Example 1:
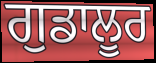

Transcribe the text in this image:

ਗੁਡਾਲੂਰ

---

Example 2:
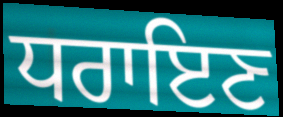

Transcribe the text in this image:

ਧਰਾਇਣ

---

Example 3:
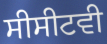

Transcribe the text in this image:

ਸੀਸੀਟਵੀ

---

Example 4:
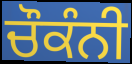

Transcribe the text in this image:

ਚੌਕੰਨੀ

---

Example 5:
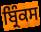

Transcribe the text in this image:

ਬ੍ਰਿੰਕਸ